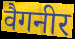
वैगनीर